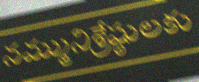
నమ్మునిశ్రేష్ఠులకు